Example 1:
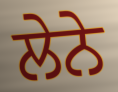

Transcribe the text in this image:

ਲੇਨੇ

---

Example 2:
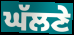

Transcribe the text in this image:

ਘੱਲਣੇ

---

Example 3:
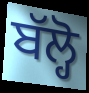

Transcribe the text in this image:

ਬੱਲ੍ਹੋ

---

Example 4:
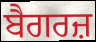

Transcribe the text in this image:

ਬੈਗਰਜ਼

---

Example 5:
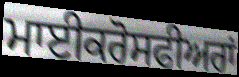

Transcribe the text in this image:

ਮਾਈਕਰੋਸਫੀਅਰਾਂ